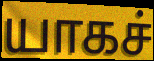
யாகச்